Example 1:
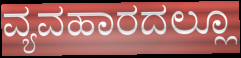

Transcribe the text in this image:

ವ್ಯವಹಾರದಲ್ಲೂ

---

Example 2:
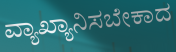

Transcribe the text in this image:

ವ್ಯಾಖ್ಯಾನಿಸಬೇಕಾದ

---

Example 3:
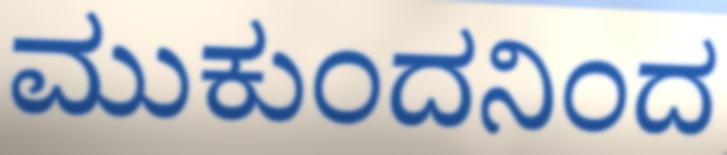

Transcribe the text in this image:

ಮುಕುಂದನಿಂದ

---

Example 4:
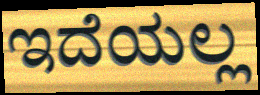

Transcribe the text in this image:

ಇದೆಯಲ್ಲ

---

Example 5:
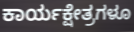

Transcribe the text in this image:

ಕಾರ್ಯಕ್ಷೇತ್ರಗಳೂ